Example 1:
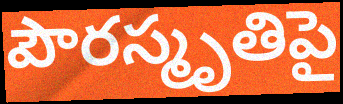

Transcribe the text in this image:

పౌరస్మృతిపై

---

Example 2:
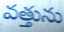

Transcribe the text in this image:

వత్తును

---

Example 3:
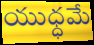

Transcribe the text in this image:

యుధ్ధమే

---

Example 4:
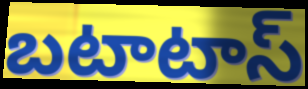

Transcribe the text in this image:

బటాటాస్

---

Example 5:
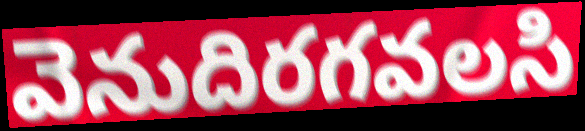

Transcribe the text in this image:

వెనుదిరగవలసి